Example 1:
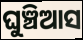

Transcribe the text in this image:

ଘୁଞ୍ଚିଆସ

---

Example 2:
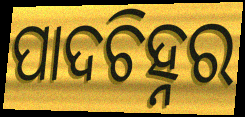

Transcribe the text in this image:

ପାଦଚିହ୍ନର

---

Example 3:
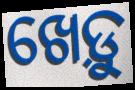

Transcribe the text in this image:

ଖେଡ଼ୁ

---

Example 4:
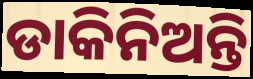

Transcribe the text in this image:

ଡାକିନିଅନ୍ତି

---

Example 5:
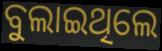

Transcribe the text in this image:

ବୁଲାଇଥିଲେ